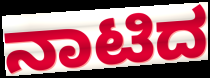
ನಾಟಿದ